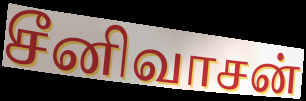
சீனிவாசன்